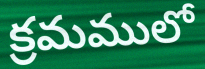
క్రమములో